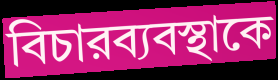
বিচারব্যবস্থাকে